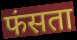
फंसता